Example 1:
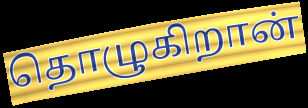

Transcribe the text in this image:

தொழுகிறான்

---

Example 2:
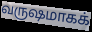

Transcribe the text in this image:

வருஷமாகக்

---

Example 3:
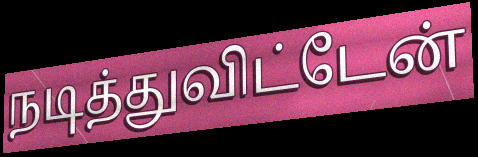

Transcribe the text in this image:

நடித்துவிட்டேன்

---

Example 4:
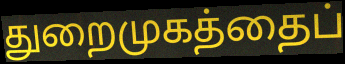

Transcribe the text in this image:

துறைமுகத்தைப்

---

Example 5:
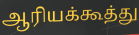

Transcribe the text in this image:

ஆரியக்கூத்து